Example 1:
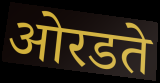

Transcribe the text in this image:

ओरडते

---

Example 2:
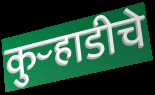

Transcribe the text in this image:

कुऱ्हाडीचे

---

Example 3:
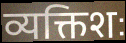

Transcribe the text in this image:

व्यक्तिशः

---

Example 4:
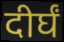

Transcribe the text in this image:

दीर्घं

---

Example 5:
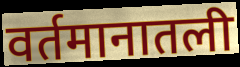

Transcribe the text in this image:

वर्तमानातली